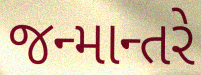
જન્માન્તરે